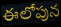
ఈలోపున